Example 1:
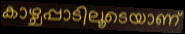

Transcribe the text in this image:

കാഴ്ചപ്പാടിലൂടെയാണ്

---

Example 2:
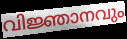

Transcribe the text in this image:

വിജ്ഞാനവും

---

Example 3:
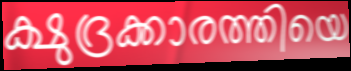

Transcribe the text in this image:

ക്ഷുദ്രക്കാരത്തിയെ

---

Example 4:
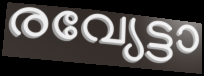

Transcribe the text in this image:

രവ്യേട്ടാ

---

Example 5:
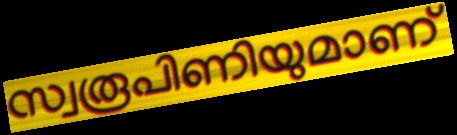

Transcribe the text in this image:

സ്വരൂപിണിയുമാണ്